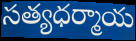
సత్యధర్మాయ